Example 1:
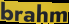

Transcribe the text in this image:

brahm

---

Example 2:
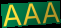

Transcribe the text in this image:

AAA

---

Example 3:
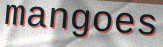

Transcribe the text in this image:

mangoes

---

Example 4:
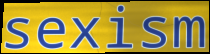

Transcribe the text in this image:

sexism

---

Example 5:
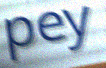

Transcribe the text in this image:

pey